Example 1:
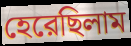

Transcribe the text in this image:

হেরেছিলাম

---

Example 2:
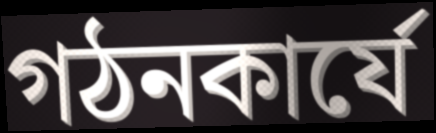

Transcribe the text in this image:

গঠনকার্যে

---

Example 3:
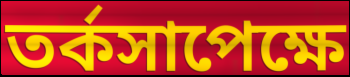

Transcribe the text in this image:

তর্কসাপেক্ষে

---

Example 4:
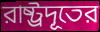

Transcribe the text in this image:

রাষ্ট্রদূতের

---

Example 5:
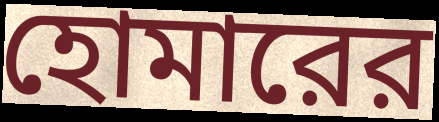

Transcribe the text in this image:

হোমারের